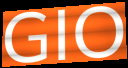
GIO